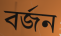
বর্জন